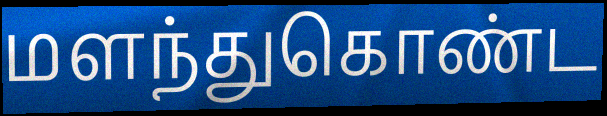
மளந்துகொண்ட